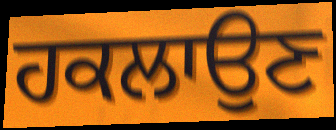
ਹਕਲਾਉਣ